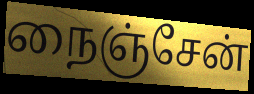
நைஞ்சேன்